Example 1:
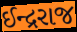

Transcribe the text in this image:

ઈન્દ્રરાજ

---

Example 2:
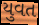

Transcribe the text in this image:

યુવત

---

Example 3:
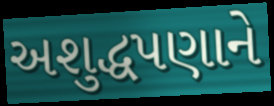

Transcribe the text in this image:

અશુદ્ધપણાને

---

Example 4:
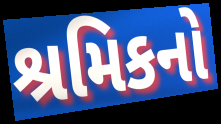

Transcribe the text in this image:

શ્રમિકનો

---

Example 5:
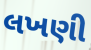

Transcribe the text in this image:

લખણી